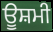
ਊਸ਼ਮੀ